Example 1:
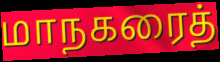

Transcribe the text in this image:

மாநகரைத்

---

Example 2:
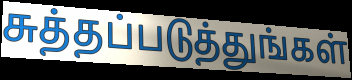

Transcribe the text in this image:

சுத்தப்படுத்துங்கள்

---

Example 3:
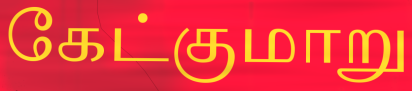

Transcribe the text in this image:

கேட்குமாறு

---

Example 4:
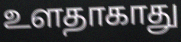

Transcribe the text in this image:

உளதாகாது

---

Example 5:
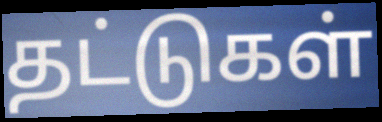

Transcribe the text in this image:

தட்டுகள்